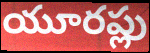
యూరప్లు